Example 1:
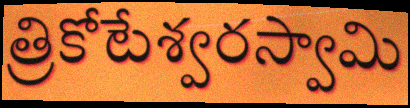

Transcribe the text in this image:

త్రికోటేశ్వరస్వామి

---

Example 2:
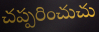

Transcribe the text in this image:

చప్పరించుచు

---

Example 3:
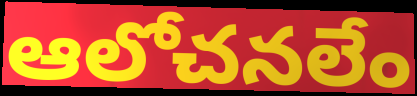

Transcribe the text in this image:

ఆలోచనలేం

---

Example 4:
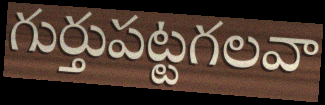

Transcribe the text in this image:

గుర్తుపట్టగలవా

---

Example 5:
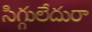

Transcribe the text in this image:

సిగ్గులేదురా